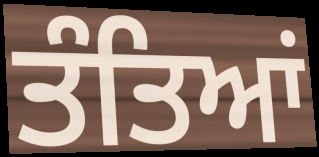
ਤੰਤਿਆਂ